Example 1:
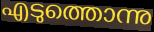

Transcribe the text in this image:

എടുത്തൊന്നു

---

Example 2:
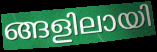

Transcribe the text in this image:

ങ്ങളിലായി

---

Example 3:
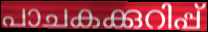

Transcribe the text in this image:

പാചകക്കുറിപ്പ്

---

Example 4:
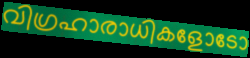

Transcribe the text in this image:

വിഗ്രഹാരാധികളോടോ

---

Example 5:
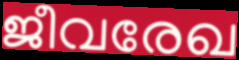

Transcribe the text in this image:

ജീവരേഖ